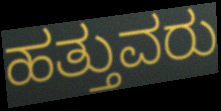
ಹತ್ತುವರು